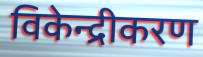
विकेन्द्रीकरण